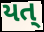
યત્